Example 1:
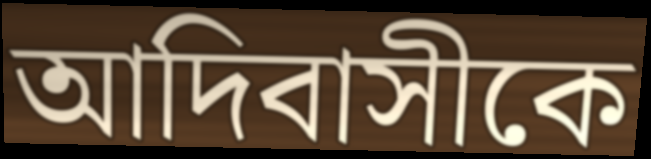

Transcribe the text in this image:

আদিবাসীকে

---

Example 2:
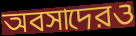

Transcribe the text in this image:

অবসাদেরও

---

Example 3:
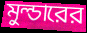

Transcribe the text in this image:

মুল্ডারের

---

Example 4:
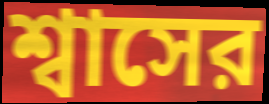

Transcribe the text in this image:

শ্বাসের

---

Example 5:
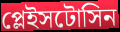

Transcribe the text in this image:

প্লেইসটোসিন